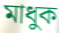
মাধুক